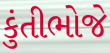
કુંતીભોજે